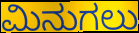
ಮಿನುಗಲು